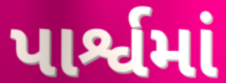
પાર્શ્વમાં